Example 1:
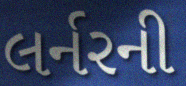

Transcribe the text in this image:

લર્નરની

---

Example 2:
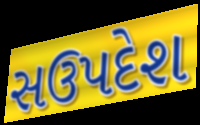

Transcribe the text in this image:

સઉપદેશ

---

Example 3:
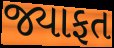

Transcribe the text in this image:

જ્યાફત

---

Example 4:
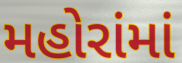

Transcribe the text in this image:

મહોરાંમાં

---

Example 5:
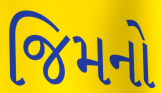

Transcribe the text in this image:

જિમનો